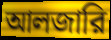
আলজারি